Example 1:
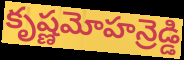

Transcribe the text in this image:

కృష్ణమోహన్రెడ్డి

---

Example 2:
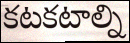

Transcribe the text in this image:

కటకటాల్ని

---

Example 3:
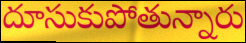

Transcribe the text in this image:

దూసుకుపోతున్నారు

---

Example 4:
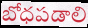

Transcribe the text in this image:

బోధపడాలి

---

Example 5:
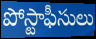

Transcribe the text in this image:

పోస్టాఫీసులు